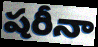
షరీనా